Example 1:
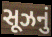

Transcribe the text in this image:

સૂઝનું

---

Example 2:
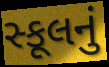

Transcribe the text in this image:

સ્કૂલનું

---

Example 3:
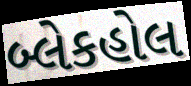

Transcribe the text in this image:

બ્લેકહોલ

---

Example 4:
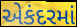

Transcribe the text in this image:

એકંદરમાં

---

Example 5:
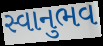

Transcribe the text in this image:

સ્વાનુભવ